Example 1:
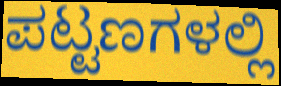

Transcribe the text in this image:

ಪಟ್ಟಣಗಳಲ್ಲಿ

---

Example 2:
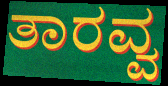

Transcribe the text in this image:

ತಾರವ್ವ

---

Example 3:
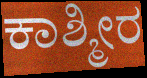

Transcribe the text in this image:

ಕಾಶ್ಮೀರ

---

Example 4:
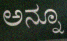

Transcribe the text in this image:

ಅನ್ನೂ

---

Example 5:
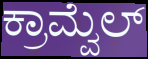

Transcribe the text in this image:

ಕ್ರಾಮ್ವೆಲ್